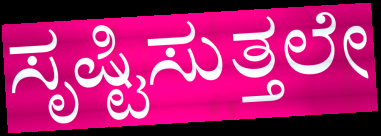
ಸೃಷ್ಟಿಸುತ್ತಲೇ